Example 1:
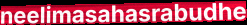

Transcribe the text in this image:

neelimasahasrabudhe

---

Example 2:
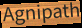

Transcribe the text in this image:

Agnipath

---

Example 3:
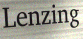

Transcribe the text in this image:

Lenzing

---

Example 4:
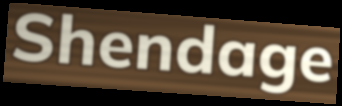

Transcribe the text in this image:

Shendage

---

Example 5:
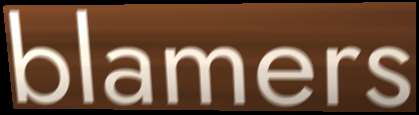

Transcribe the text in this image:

blamers